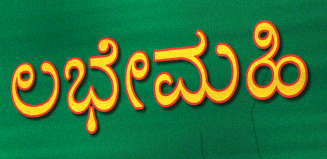
ಲಭೇಮಹಿ